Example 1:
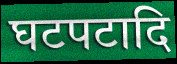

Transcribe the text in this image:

घटपटादि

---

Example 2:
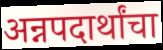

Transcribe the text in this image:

अन्नपदार्थांचा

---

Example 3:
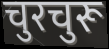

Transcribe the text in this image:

चुरचुरू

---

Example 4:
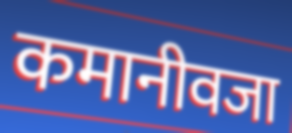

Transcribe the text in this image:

कमानीवजा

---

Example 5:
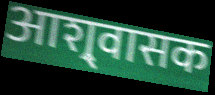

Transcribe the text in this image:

आश्र्वासक